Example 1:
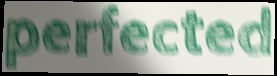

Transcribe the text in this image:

perfected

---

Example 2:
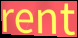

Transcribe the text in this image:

rent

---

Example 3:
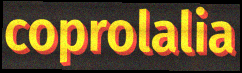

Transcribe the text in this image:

coprolalia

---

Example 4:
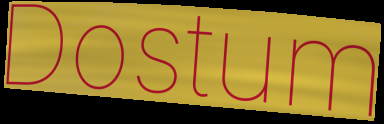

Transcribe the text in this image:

Dostum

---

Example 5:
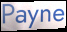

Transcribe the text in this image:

Payne